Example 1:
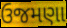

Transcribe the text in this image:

ઉજમણા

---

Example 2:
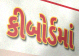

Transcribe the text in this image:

કીબોર્ડમાં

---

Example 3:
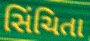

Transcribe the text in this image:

સિંચિતા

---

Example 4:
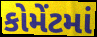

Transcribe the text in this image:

કોમેંટમાં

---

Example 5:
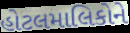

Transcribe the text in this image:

હોટલમાલિકોને